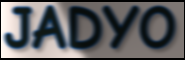
JADYO